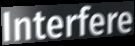
Interfere